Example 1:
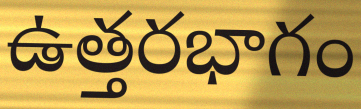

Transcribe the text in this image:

ఉత్తరభాగం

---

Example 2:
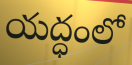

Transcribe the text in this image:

యద్ధంలో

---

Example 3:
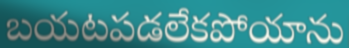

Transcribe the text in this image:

బయటపడలేకపోయాను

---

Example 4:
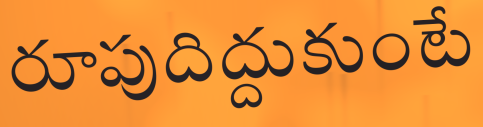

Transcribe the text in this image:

రూపుదిద్దుకుంటే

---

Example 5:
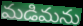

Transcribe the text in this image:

మడిమను